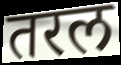
तरल